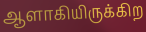
ஆளாகியிருக்கிற